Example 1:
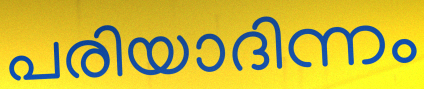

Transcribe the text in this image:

പരിയാദിന്നം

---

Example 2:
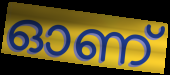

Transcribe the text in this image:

ഓണ്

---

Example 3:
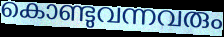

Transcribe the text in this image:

കൊണ്ടുവന്നവരും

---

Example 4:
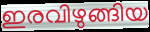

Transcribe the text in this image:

ഇരവിഴുങ്ങിയ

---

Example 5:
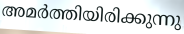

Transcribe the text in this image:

അമർത്തിയിരിക്കുന്നു